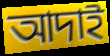
আদাই